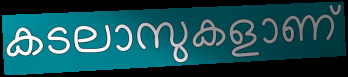
കടലാസുകളാണ്